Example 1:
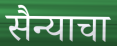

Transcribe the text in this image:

सैन्याचा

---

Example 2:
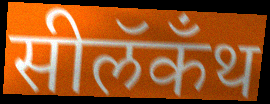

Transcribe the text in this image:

सीलॅकँथ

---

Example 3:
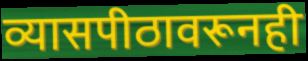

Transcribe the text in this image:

व्यासपीठावरूनही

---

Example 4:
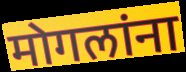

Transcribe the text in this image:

मोगलांना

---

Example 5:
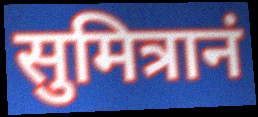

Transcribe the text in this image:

सुमित्रानं